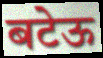
बटेऊ